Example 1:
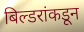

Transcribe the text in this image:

बिल्डरांकडून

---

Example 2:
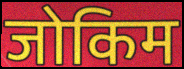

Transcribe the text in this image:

जोकिम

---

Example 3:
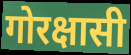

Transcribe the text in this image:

गोरक्षासी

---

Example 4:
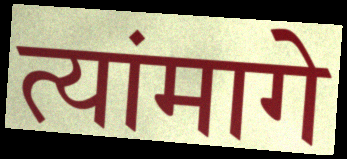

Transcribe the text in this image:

त्यांमागे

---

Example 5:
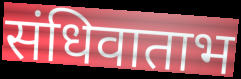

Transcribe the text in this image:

संधिवाताभ